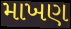
માખણ